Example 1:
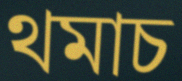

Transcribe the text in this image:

থমাচ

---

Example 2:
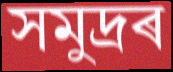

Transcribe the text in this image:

সমুদ্ৰৰ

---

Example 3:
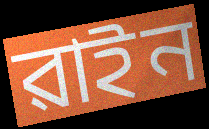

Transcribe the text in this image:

ৱাইন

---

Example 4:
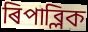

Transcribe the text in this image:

ৰিপাব্লিক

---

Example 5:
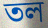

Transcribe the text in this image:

তল